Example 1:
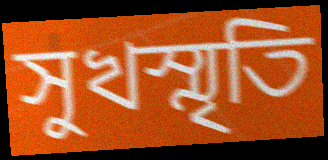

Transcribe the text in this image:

সুখস্মৃতি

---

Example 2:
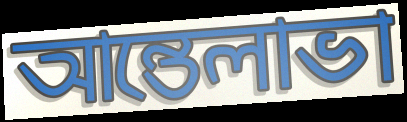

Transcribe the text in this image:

আন্তেলাভা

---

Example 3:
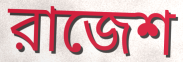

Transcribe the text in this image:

রাজেশ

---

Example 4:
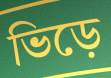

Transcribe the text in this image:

ভিড়ে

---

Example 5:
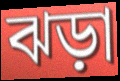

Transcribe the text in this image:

ঝড়া